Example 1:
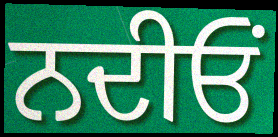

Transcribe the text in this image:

ਨਦੀਓਂ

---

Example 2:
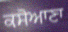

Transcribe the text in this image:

ਕਸੋਆਣਾ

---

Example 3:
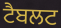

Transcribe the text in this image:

ਟੈਬਲਟ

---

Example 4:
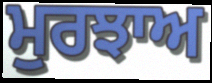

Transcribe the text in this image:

ਮੁਰਝਾਅ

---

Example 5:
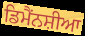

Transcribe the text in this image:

ਡਿਮੈਂਨਸ਼ੀਆ